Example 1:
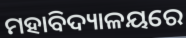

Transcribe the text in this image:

ମହାବିଦ୍ୟାଳୟରେ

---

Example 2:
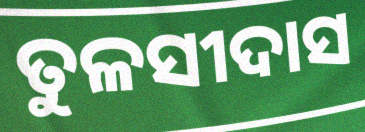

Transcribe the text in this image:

ତୁଳସୀଦାସ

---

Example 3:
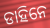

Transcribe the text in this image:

ଡାହିନେ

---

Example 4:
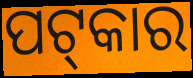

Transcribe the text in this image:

ପଟ୍‌କାର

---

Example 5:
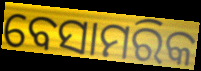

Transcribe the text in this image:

ବେସାମରିକ